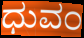
ಧುವಂ